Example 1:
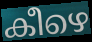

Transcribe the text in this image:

കീഴെ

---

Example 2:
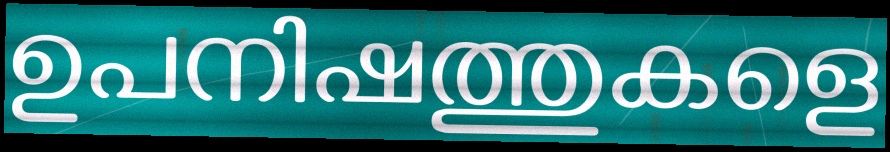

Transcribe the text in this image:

ഉപനിഷത്തുകളെ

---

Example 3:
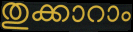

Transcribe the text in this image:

തുക്കാറാം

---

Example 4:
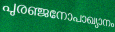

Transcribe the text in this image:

പുരഞ്ജനോപാഖ്യാനം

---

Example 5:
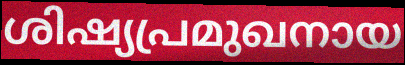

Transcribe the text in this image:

ശിഷ്യപ്രമുഖനായ